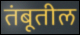
तंबूतील